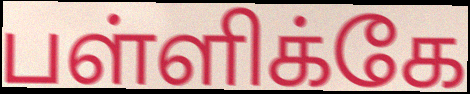
பள்ளிக்கே